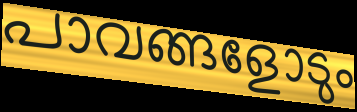
പാവങ്ങളോടും